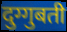
दुग्गुबती